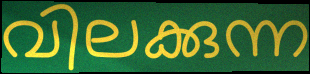
വിലക്കുന്ന